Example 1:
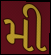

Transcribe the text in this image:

મી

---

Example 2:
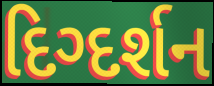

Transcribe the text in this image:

દિગ્દર્શન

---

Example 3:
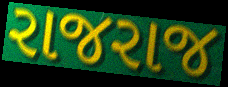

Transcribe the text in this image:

રાજરાજ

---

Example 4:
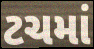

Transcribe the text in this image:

ટચમાં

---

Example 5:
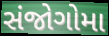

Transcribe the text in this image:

સંજોગોમા